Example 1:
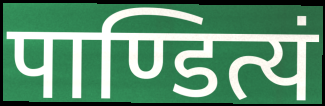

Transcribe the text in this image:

पाण्डित्यं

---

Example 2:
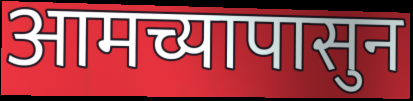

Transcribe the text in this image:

आमच्यापासुन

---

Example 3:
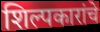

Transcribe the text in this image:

शिल्पकारांचे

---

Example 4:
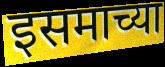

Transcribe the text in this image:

इसमाच्या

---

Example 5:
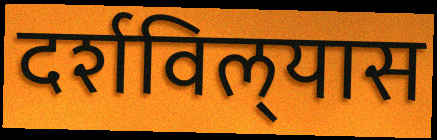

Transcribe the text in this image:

दर्शविल्यास